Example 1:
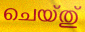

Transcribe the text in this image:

ചെയ്തു്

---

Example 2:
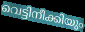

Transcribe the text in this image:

വെട്ടിനീക്കിയും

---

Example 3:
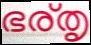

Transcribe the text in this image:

ഭര്തൃ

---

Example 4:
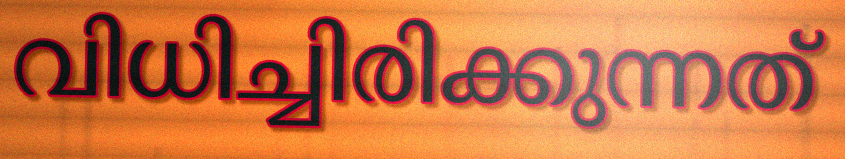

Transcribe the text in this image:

വിധിച്ചിരിക്കുന്നത്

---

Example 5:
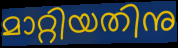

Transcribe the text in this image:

മാറ്റിയതിനു